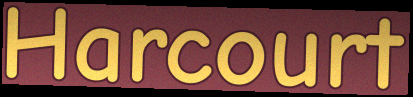
Harcourt